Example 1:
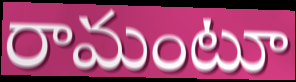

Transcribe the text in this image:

రామంటూ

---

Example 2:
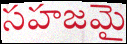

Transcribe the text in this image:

సహజమై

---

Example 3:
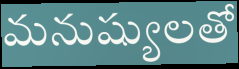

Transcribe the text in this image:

మనుష్యులతో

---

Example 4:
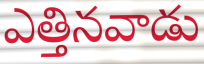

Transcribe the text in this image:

ఎత్తినవాడు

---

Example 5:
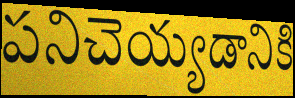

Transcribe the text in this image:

పనిచెయ్యడానికి